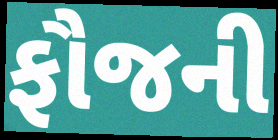
ફૌજની